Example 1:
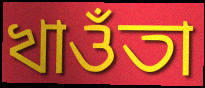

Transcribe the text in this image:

খাওঁতা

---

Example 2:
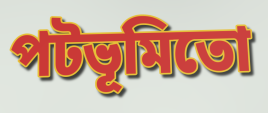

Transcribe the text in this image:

পটভূমিতো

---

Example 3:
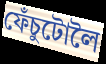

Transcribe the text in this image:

ফেঁচুটোলৈ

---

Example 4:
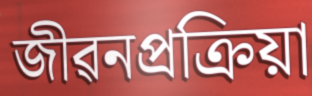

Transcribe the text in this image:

জীৱনপ্ৰক্ৰিয়া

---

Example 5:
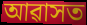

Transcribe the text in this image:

আৱাসত